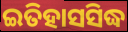
ଇତିହାସସିଦ୍ଧ